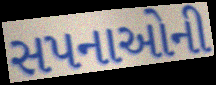
સપનાઓની